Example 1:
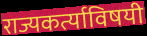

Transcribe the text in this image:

राज्यकर्त्याविषयी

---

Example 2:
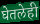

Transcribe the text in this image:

घेतलेही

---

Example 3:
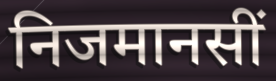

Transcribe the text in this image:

निजमानसीं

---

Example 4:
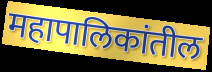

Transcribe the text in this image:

महापालिकांतील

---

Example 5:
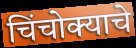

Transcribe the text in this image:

चिंचोक्याचे